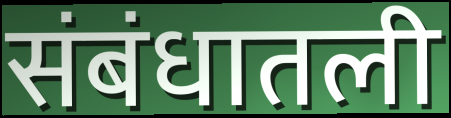
संबंधातली